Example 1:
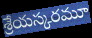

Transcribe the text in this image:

శ్రేయస్కరమూ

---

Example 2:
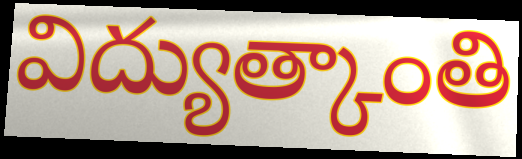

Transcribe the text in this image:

విద్యుత్కాంతి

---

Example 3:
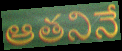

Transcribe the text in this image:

ఆతనినే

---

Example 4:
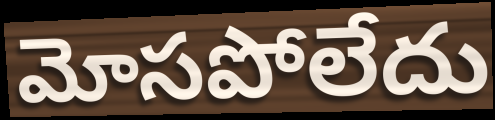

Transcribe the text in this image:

మోసపోలేదు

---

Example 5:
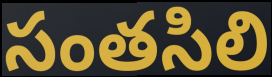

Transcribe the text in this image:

సంతసిలి